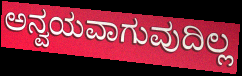
ಅನ್ವಯವಾಗುವುದಿಲ್ಲ